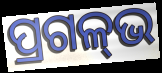
ପ୍ରଗଳ୍‌ଭ